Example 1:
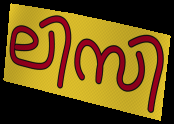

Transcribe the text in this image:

ലിസി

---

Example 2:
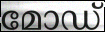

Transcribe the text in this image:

മോഡ്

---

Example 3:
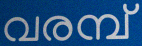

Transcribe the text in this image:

വരമ്പ്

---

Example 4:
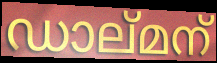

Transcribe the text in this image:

ഡാല്മന്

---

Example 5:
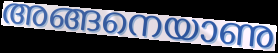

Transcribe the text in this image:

അങ്ങനെയാണു